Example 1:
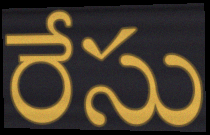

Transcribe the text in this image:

రేసు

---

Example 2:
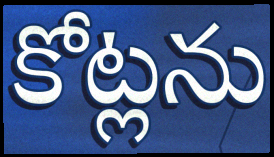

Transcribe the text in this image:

కోట్లను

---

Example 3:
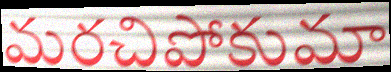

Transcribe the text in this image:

మరచిపోకుమా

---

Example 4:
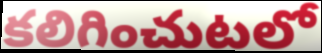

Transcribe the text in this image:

కలిగించుటలో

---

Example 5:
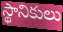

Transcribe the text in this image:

స్థానికులు